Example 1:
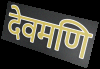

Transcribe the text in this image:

देवमणि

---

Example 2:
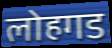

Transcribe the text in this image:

लोहगड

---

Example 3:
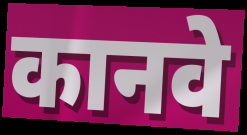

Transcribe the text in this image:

कानवे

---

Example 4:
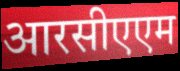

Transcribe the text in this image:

आरसीएएम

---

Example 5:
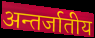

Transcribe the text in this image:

अन्तर्जातीय